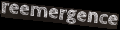
reemergence